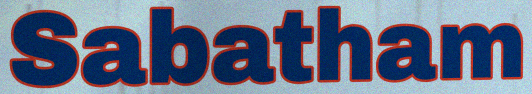
Sabatham